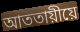
আততায়ীয়ে